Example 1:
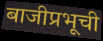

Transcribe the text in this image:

बाजीप्रभूची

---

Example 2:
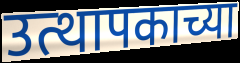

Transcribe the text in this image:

उत्थापकाच्या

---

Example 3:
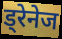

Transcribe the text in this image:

ड्रेनेज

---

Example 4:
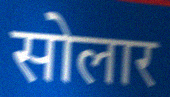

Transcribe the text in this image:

सोलार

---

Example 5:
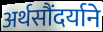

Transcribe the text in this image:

अर्थसौंदर्याने